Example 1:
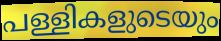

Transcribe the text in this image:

പള്ളികളുടെയും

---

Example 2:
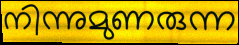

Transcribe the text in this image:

നിന്നുമുണരുന്ന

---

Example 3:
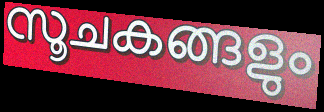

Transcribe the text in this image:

സൂചകങ്ങളും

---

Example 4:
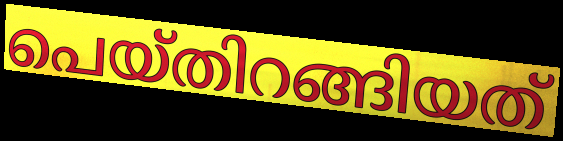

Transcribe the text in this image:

പെയ്തിറങ്ങിയത്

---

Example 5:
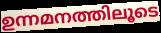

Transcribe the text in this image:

ഉന്നമനത്തിലൂടെ